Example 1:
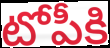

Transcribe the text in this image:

టోపీకి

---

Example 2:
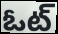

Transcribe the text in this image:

ఓట్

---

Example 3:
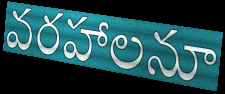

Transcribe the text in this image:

వరహాలనూ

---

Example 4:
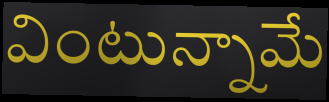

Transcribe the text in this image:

వింటున్నామే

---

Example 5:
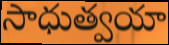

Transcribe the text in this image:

సాధుత్వయా